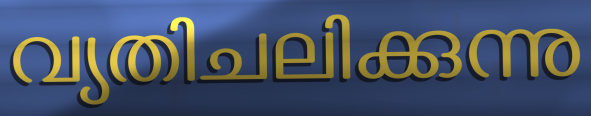
വ്യതിചലിക്കുന്നു